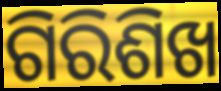
ଗିରିଶିଖ